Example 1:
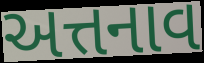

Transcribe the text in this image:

અત્તનાવ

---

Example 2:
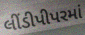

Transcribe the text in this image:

લીંડીપીપરમાં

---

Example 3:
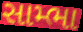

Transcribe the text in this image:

સામ્ભા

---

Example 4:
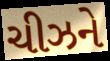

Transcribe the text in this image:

ચીઝને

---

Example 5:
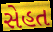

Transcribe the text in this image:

સેહત